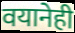
वयानेही